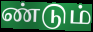
ண்டும்